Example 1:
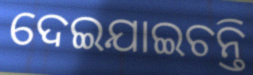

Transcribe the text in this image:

ଦେଇଯାଇଚନ୍ତି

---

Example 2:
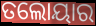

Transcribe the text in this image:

ତଲୋୟାର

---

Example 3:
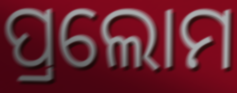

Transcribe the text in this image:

ପ୍ରଲୋମ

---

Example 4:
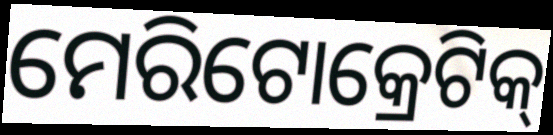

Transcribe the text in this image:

ମେରିଟୋକ୍ରେଟିକ୍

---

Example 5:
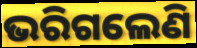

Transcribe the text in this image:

ଭରିଗଲେଣି